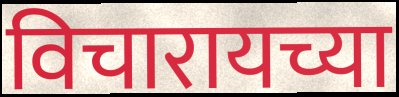
विचारायच्या